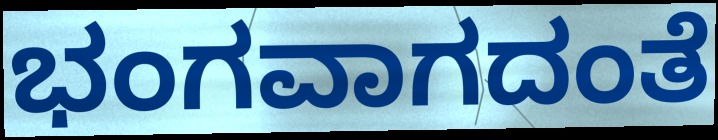
ಭಂಗವಾಗದಂತೆ